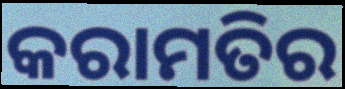
କରାମତିର